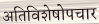
अतिविशेषोपचार